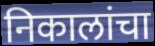
निकालांचा